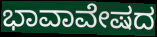
ಭಾವಾವೇಷದ